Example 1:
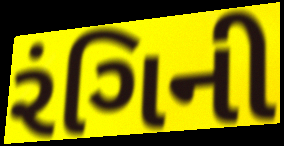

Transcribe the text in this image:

રંગિની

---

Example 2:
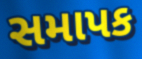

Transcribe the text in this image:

સમાપક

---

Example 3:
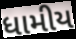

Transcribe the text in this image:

ધામીય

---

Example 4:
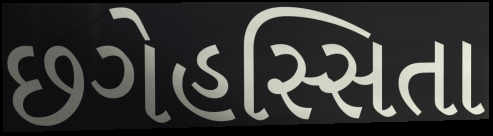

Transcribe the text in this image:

છગેહસ્સિતા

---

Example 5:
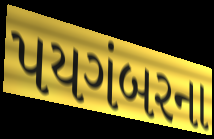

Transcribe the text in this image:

પયગંબરના